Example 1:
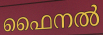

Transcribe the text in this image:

ഫൈനൽ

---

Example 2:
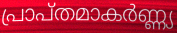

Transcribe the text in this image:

പ്രാപ്തമാകർണ്ണ്യ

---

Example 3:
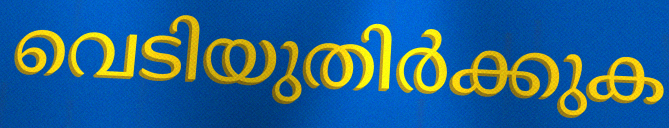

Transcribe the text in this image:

വെടിയുതിർക്കുക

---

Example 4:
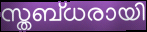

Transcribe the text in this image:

സ്തബ്ധരായി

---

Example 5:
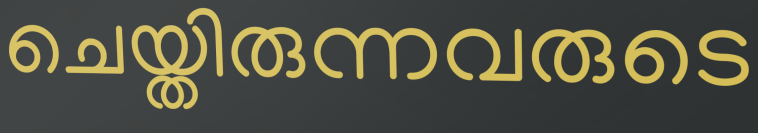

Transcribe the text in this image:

ചെയ്തിരുന്നവരുടെ